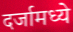
दर्जामध्ये